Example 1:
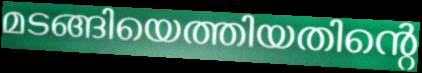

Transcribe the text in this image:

മടങ്ങിയെത്തിയതിന്റെ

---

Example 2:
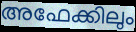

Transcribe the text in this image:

അഫേക്കിലും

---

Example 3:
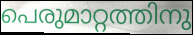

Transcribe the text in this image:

പെരുമാറ്റത്തിനു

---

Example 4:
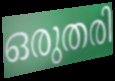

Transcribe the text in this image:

ഒരുതരി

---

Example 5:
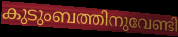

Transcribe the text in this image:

കുടുംബത്തിനുവേണ്ടി